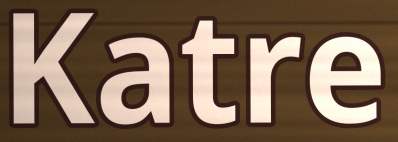
Katre